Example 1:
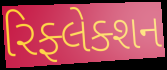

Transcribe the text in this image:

રિફ્લેક્શન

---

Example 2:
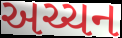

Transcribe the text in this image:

અચ્ચન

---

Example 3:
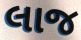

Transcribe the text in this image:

લાજ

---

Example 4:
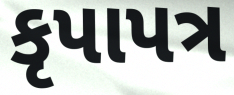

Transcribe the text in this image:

કૃપાપત્ર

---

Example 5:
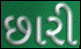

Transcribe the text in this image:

છારી